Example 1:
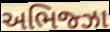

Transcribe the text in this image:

અભિજ્ઝા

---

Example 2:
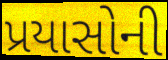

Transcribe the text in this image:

પ્રયાસોની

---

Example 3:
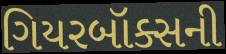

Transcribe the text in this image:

ગિયરબૉક્સની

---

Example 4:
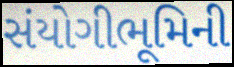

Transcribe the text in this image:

સંયોગીભૂમિની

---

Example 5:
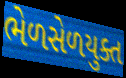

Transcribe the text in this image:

ભેળસેળયુક્ત